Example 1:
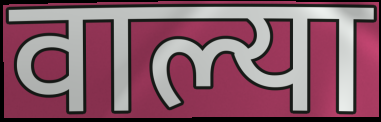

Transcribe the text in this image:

वाल्या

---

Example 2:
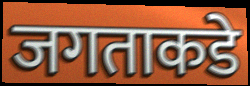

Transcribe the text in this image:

जगताकडे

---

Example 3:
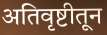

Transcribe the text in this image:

अतिवृष्टीतून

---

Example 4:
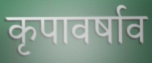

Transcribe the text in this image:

कृपावर्षाव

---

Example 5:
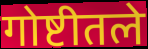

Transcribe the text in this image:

गोष्टीतले